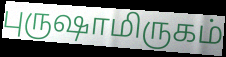
புருஷாமிருகம்